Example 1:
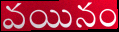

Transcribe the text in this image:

వయినం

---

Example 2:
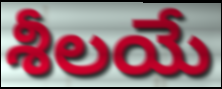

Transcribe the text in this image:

శీలయే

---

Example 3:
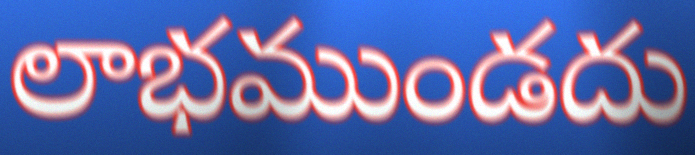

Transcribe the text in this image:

లాభముండదు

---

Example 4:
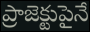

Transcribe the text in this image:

ప్రాజెక్టుపైనే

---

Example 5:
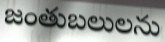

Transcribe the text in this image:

జంతుబలులను